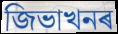
জিভাখনৰ